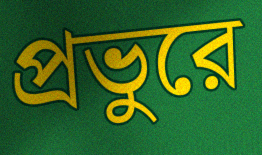
প্রভুরে